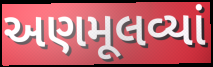
અણમૂલવ્યાં